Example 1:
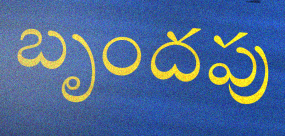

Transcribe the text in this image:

బృందపు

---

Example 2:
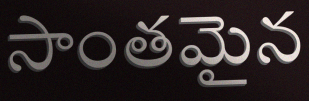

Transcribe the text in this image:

సాంతమైన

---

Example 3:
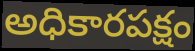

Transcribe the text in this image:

అధికారపక్షం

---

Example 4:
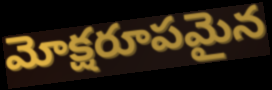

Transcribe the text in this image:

మోక్షరూపమైన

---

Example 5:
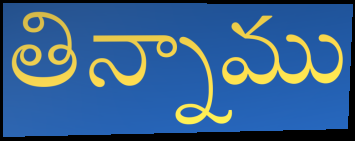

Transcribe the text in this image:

తిన్నాము